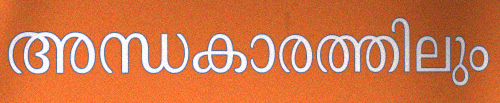
അന്ധകാരത്തിലും